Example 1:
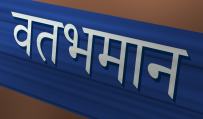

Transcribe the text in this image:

वतभमान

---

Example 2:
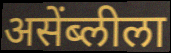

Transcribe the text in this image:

असेंब्लीला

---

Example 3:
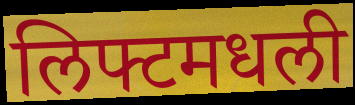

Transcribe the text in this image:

लिफ्टमधली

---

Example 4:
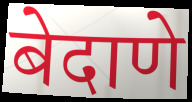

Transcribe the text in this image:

बेदाणे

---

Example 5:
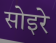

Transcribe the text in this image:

सोइरे